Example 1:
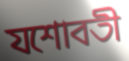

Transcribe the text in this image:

যশোবতী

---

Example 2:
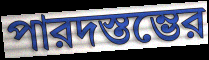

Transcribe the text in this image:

পারদস্তম্ভের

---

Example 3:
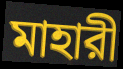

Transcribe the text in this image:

মাহারী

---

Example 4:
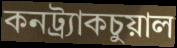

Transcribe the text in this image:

কনট্র্যাকচুয়াল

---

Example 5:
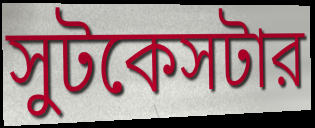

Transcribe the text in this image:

সুটকেসটার